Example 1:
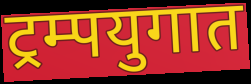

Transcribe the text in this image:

ट्रम्पयुगात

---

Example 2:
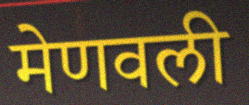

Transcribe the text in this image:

मेणवली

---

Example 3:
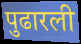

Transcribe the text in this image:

पुढारली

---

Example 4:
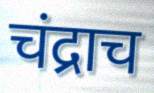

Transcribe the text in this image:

चंद्राच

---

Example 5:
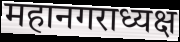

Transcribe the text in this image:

महानगराध्यक्ष